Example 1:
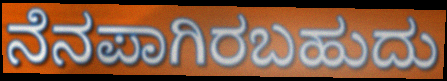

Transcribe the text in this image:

ನೆನಪಾಗಿರಬಹುದು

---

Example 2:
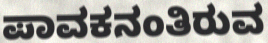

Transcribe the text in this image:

ಪಾವಕನಂತಿರುವ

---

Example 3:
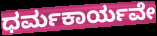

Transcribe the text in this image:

ಧರ್ಮಕಾರ್ಯವೇ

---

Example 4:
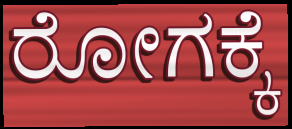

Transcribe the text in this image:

ರೋಗಕ್ಕೆ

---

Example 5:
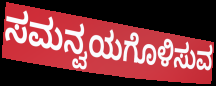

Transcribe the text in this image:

ಸಮನ್ವಯಗೊಳಿಸುವ